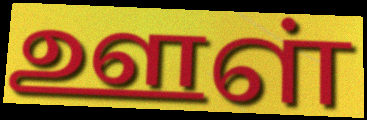
ஊள்